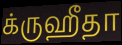
க்ருஹீதா